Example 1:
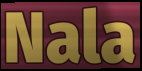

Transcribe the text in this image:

Nala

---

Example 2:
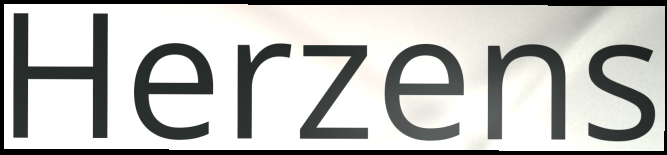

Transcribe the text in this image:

Herzens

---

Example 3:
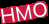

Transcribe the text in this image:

HMO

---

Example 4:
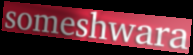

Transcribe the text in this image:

someshwara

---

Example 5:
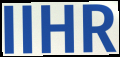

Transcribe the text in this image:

IIHR